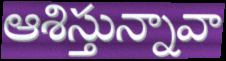
ఆశిస్తున్నావా